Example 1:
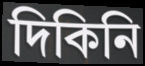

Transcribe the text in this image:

দিকিনি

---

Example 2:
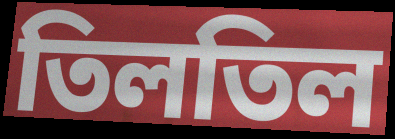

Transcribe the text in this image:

তিলতিল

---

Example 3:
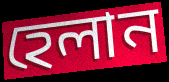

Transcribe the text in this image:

হেলান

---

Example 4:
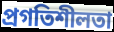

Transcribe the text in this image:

প্রগতিশীলতা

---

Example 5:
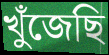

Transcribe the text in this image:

খুঁজেছি